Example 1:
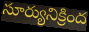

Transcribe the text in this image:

సూర్యునిక్రింద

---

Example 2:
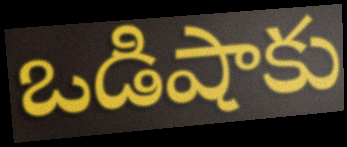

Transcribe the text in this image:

ఒడిషాకు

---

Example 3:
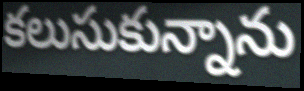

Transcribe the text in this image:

కలుసుకున్నాను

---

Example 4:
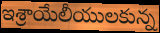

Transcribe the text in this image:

ఇశ్రాయేలీయులకున్న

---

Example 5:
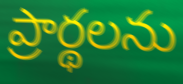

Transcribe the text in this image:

ప్రార్థలను